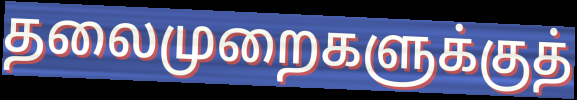
தலைமுறைகளுக்குத்